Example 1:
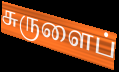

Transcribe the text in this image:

சுருளைப்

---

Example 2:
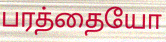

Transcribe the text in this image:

பரத்தையோ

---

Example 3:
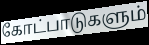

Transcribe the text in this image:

கோட்பாடுகளும்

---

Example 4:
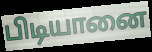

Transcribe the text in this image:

பிடியானை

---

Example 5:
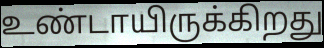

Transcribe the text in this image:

உண்டாயிருக்கிறது